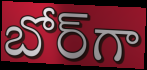
బోర్‌గా